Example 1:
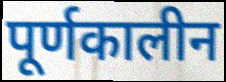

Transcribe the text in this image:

पूर्णकालीन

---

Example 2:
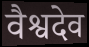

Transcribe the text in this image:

वैश्वदेव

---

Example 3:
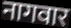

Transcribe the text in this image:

नागवार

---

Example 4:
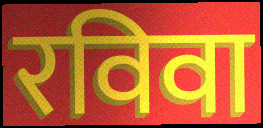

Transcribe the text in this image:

रविवा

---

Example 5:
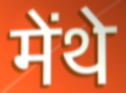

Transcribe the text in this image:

मेंथे